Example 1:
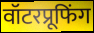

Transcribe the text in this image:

वॉटरप्रूफिंग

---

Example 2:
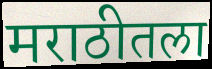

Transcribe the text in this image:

मराठीतला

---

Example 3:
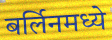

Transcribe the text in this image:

बर्लिनमध्ये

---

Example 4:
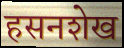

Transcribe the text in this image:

हसनशेख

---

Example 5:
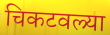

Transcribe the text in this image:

चिकटवल्या